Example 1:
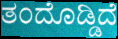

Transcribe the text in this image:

ತಂದೊಡ್ಡಿದೆ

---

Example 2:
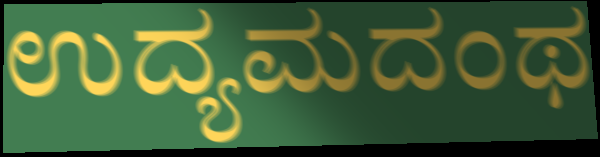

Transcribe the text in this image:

ಉದ್ಯಮದಂಥ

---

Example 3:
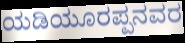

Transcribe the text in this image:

ಯಡಿಯೂರಪ್ಪನವರ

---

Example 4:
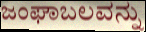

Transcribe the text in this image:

ಜಂಘಾಬಲವನ್ನು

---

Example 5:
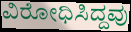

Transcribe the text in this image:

ವಿರೋಧಿಸಿದ್ದವು